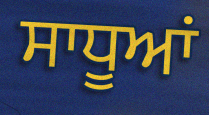
ਸਾਧੂਆਂ